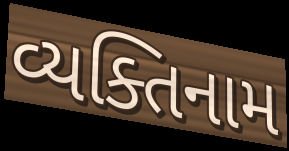
વ્યક્તિનામ